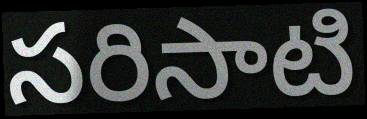
సరిసాటి